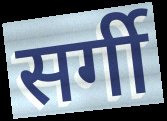
सर्गी